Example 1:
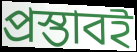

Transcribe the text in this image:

প্রস্তাবই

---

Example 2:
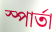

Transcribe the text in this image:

স্পার্তা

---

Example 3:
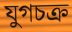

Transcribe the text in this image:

যুগচক্র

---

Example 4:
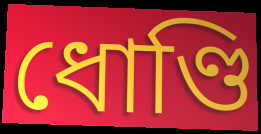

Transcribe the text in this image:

ধোণ্ডি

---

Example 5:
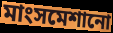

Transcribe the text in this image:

মাংসমেশানো